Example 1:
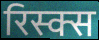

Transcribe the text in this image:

रिस्क्स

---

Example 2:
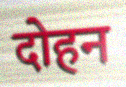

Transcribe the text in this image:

दोहन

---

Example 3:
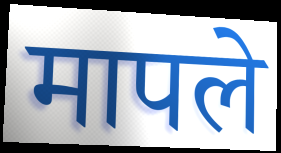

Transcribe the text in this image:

मापले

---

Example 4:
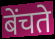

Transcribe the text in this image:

बेंचते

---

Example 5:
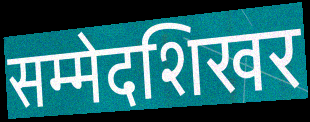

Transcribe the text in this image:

सम्मेदशिखर